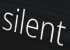
silent